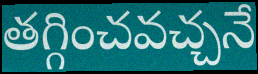
తగ్గించవచ్చనే